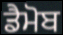
ਡੈਮੋਬ